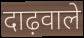
दाढ़वाले